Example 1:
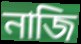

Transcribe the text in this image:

নাজি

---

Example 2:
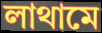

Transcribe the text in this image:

লাথামে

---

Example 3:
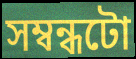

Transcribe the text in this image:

সম্বন্ধটো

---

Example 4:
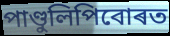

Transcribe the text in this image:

পাণ্ডুলিপিবোৰত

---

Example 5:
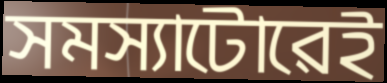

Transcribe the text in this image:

সমস্যাটোৱেই